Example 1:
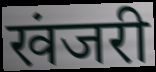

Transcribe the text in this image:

खंजरी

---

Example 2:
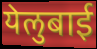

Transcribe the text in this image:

येलुबाई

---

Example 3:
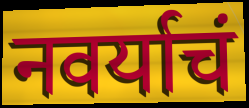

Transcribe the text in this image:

नवर्याचं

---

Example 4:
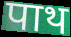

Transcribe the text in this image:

पाथ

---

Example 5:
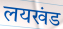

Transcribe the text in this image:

लयखंड